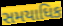
સમયાધિક